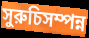
সুরুচিসম্পন্ন